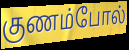
குணம்போல்